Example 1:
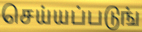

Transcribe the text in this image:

செய்யப்படுங்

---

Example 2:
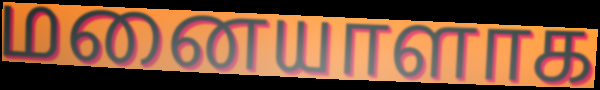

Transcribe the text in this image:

மனையாளாக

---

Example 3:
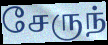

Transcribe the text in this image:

சேருந்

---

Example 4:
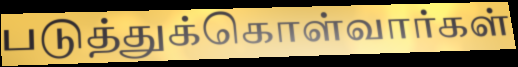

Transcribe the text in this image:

படுத்துக்கொள்வார்கள்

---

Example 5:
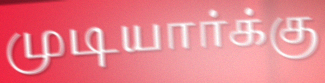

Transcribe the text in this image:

முடியார்க்கு